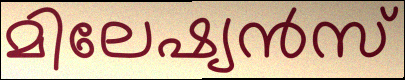
മിലേഷ്യൻസ്